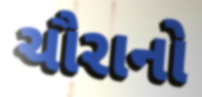
ચૌરાનો